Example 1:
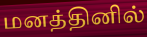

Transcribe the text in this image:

மனத்தினில்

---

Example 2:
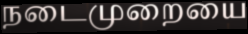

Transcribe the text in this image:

நடைமுறையை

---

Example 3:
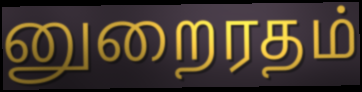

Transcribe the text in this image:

னுறைரதம்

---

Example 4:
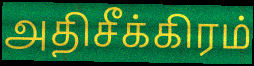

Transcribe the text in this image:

அதிசீக்கிரம்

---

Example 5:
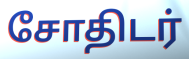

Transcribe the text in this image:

சோதிடர்